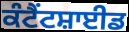
ਕੰਟੈਂਟਸ਼ਾਈਡ